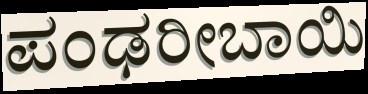
ಪಂಢರೀಬಾಯಿ